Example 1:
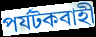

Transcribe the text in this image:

পর্যটকবাহী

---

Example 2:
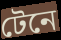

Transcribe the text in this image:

টেনে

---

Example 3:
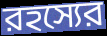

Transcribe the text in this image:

রহস্যের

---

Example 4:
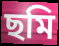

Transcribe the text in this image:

ছমি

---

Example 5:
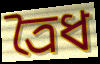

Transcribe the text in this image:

ত্রৈধ